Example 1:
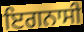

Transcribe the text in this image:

ਇਗਨਾਸੀ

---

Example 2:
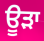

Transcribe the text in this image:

ਊੜਾ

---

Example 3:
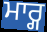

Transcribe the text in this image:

ਮਾਰ੍ਗ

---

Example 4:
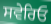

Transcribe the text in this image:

ਸਵੇਰਿਓ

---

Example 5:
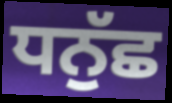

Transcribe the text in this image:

ਧਨੁੱਛ